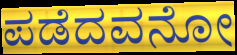
ಪಡೆದವನೋ